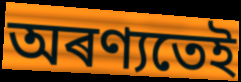
অৰণ্যতেই